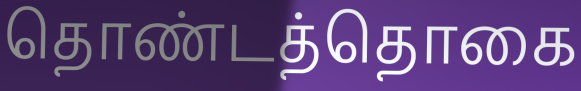
தொண்டத்தொகை